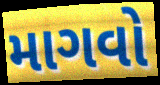
માગવો